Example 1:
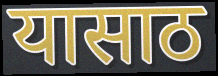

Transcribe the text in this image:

यासाठ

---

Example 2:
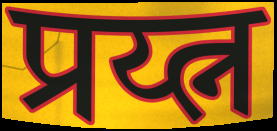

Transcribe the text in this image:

प्रय्त्न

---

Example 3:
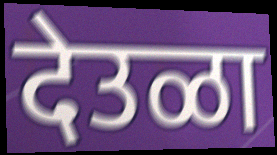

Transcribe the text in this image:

देउळा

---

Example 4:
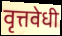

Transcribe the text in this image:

वृत्तवेधी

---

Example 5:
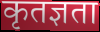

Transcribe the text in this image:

कृतज्ञता